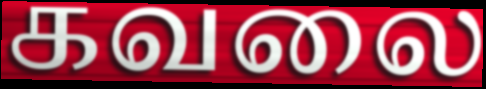
கவலை